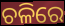
ଚଳିରେ